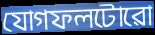
যোগফলটোৱো